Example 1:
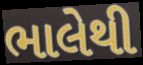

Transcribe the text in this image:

ભાલેથી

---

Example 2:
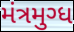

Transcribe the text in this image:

મંત્રમુગ્ધ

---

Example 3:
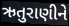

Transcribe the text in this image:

ઋતુરાણીને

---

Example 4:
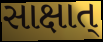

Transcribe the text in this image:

સાક્ષાત્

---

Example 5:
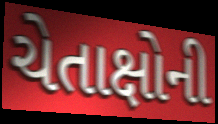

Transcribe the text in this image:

ચેતાક્ષોની